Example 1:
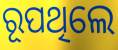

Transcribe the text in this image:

ରୂପଥିଲେ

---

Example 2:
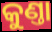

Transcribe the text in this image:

କୁଣ୍ତା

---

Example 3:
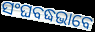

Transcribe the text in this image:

ସଂଘବଦ୍ଧଭାବେ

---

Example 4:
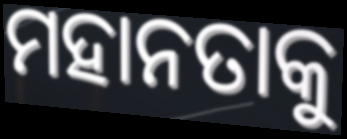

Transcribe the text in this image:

ମହାନତାକୁ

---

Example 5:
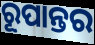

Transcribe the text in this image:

ରୂପାନ୍ତର